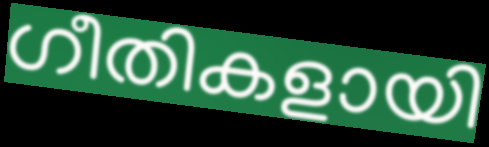
ഗീതികളായി